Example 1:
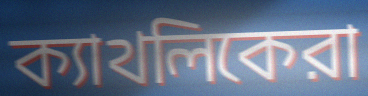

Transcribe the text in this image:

ক্যাথলিকেরা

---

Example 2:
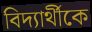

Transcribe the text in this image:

বিদ্যার্থীকে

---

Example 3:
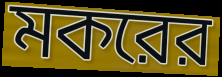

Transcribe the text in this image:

মকরের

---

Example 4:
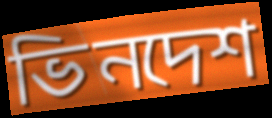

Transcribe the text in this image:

ভিনদেশ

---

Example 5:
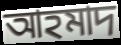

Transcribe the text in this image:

আহমাদ